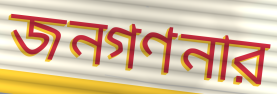
জনগণনার